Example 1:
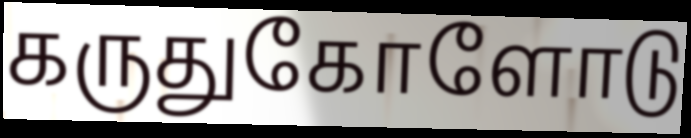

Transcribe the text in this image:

கருதுகோளோடு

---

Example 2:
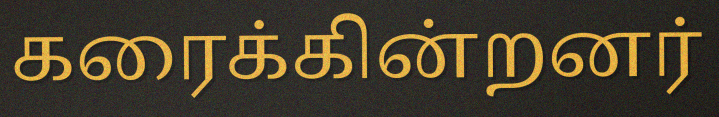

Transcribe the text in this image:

கரைக்கின்றனர்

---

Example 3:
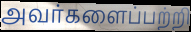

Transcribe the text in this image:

அவர்களைப்பற்றி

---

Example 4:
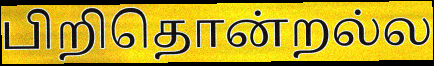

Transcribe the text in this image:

பிறிதொன்றல்ல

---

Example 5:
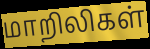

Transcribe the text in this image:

மாறிலிகள்